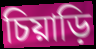
চিয়াড়ি